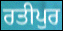
ਰਤੀਪੁਰ